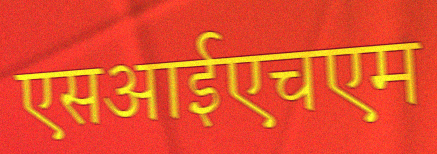
एसआईएचएम